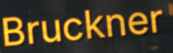
Bruckner